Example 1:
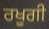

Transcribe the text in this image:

ਰਖੂਗੀ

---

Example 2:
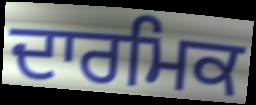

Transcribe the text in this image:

ਦਾਰਮਿਕ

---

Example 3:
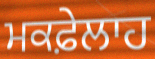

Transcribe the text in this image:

ਮਕਫ਼ੇਲਾਹ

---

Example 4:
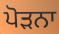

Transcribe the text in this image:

ਪੋੜਨਾ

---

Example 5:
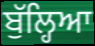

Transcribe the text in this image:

ਬੁੱਲ੍ਹਿਆ